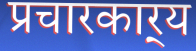
प्रचारकार्य